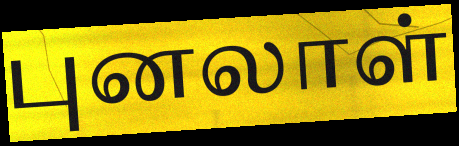
புனலாள்